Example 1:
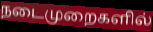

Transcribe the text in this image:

நடைமுறைகளில்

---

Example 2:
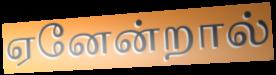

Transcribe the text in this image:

ஏனேன்றால்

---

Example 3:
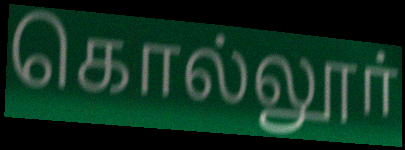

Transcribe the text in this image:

கொல்லூர்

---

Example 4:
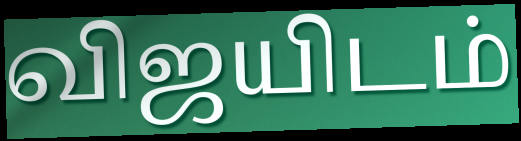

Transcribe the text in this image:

விஜயிடம்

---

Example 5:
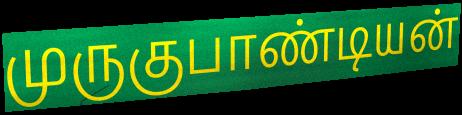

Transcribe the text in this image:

முருகுபாண்டியன்